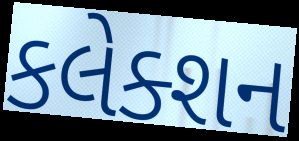
કલેક્શન